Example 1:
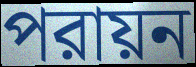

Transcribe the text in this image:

পরায়ন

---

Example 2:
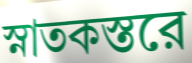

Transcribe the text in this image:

স্নাতকস্তরে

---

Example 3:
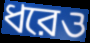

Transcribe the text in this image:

ধরেও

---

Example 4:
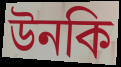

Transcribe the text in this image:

উনকি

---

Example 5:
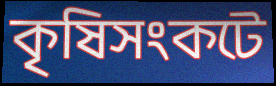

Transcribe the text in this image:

কৃষিসংকটে